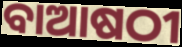
ବାଆଷଠୀ